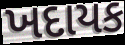
ખદાયક